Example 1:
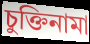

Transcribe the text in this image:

চুক্তিনামা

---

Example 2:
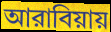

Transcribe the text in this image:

আরাবিয়ায়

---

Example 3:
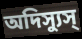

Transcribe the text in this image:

অদিস্যুস্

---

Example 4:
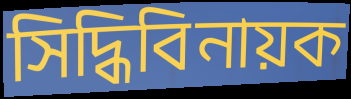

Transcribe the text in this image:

সিদ্ধিবিনায়ক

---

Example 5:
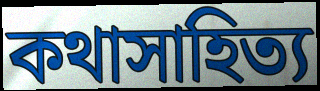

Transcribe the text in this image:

কথাসাহিত্য